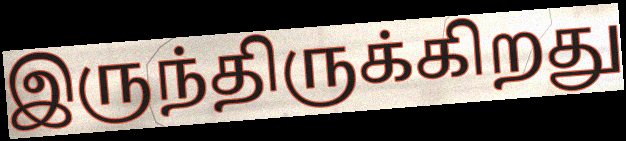
இருந்திருக்கிறது